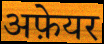
अफ़ेयर